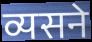
व्यसने